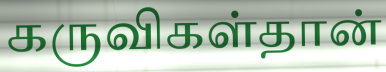
கருவிகள்தான்